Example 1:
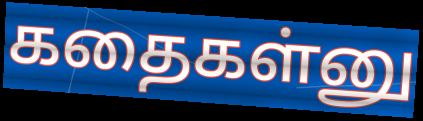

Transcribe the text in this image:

கதைகள்னு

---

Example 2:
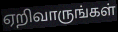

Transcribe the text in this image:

ஏறிவாருங்கள்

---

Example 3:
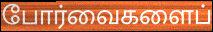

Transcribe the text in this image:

போர்வைகளைப்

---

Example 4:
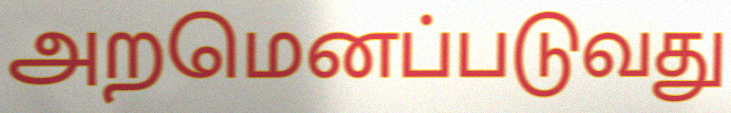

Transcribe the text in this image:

அறமெனப்படுவது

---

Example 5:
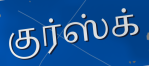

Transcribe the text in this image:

குர்ஸ்க்